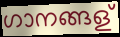
ഗാനങ്ങള്